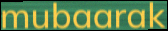
mubaarak